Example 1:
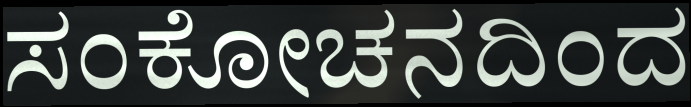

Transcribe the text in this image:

ಸಂಕೋಚನದಿಂದ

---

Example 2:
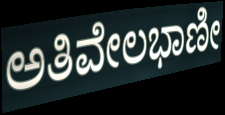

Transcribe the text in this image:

ಅತಿವೇಲಭಾಣೀ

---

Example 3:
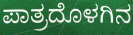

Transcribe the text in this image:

ಪಾತ್ರದೊಳಗಿನ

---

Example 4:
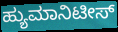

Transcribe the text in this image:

ಹ್ಯುಮಾನಿಟೀಸ್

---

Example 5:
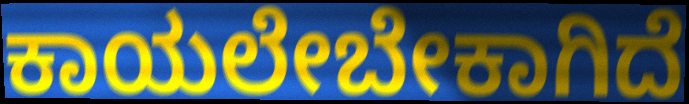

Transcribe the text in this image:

ಕಾಯಲೇಬೇಕಾಗಿದೆ